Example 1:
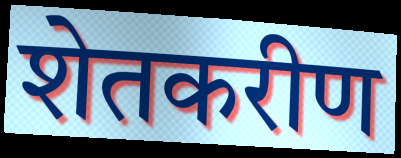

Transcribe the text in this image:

शेतकरीण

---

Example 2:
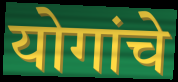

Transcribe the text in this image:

योगांचे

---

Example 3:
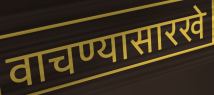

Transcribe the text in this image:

वाचण्यासारखे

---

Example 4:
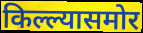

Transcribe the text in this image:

किल्ल्यासमोर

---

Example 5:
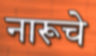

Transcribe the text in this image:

नारूचे